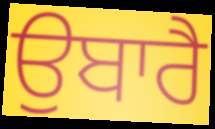
ਉਬਾਰੈ